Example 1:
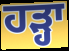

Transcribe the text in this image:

ਹੜ੍ਹਾ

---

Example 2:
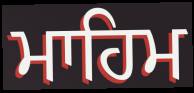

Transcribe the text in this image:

ਮਾਹਿਮ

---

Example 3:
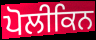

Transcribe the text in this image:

ਪੋਲੀਕਿਨ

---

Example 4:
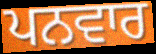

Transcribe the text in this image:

ਪਨਵਾਰ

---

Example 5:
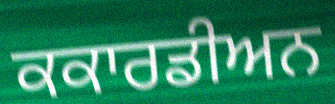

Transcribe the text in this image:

ਕਕਾਰਡੀਅਨ